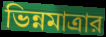
ভিন্নমাত্রার